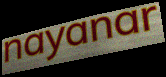
nayanar